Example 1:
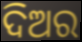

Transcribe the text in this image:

ଦିଅର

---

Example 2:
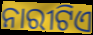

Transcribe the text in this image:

ନାରୀଟିଏ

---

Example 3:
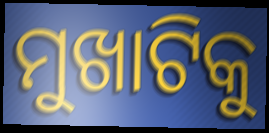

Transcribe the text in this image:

ମୁଖାଟିକୁ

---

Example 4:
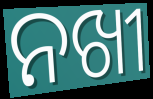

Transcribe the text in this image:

ନଖୀ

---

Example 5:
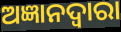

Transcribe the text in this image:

ଅଜ୍ଞାନଦ୍ଵାରା